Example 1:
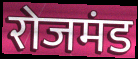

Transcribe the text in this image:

रोजमंड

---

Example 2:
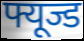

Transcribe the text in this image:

फ्यूज्ड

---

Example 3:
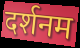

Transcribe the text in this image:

दर्शनम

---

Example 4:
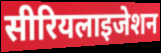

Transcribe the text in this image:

सीरियलाइजेशन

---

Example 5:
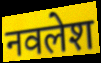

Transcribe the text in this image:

नवलेश